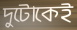
দুটোকেই